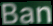
Ban